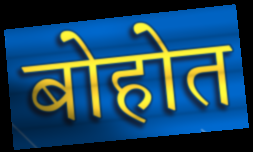
बोहोत